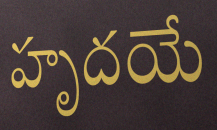
హృదయే